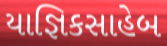
યાજ્ઞિકસાહેબ